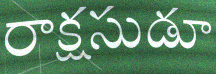
రాక్షసుడూ